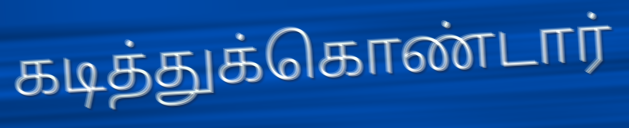
கடித்துக்கொண்டார்